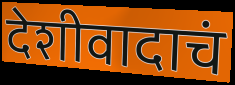
देशीवादाचं